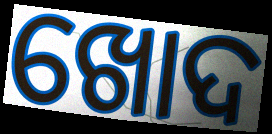
ଖୋଦ